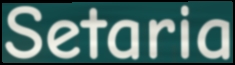
Setaria